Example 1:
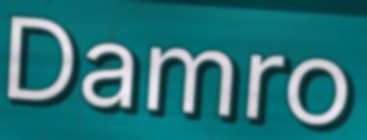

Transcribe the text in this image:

Damro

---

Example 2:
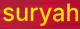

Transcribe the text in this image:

suryah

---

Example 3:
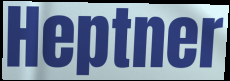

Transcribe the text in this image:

Heptner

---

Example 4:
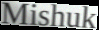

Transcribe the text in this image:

Mishuk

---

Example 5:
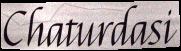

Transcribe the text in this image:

Chaturdasi